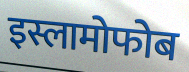
इस्लामोफोब